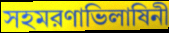
সহমরণাভিলাষিনী